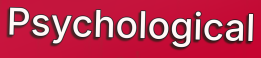
Psychological